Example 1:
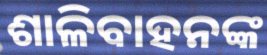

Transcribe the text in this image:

ଶାଳିବାହନଙ୍କ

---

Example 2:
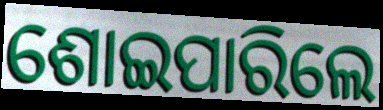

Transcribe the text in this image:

ଶୋଇପାରିଲେ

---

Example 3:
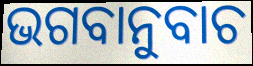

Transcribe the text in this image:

ଭଗବାନୁବାଚ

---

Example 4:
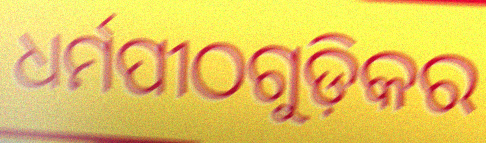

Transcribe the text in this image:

ଧର୍ମପୀଠଗୁଡ଼ିକର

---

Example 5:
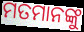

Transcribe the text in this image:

ମତମାନଙ୍କୁ